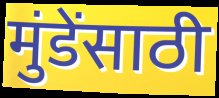
मुंडेंसाठी